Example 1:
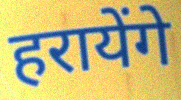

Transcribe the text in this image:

हरायेंगे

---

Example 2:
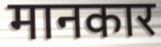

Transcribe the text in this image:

मानकार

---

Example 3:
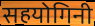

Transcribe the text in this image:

सहयोगिनी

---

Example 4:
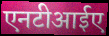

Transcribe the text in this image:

एनटीआईए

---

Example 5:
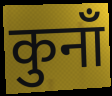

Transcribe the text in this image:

कुनाँ